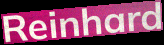
Reinhard